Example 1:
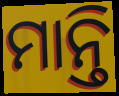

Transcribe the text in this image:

ମାନ୍ତି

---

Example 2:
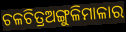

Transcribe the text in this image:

ଚଳଚିତ୍ରଅଙ୍ଗୁଳିମାଳାର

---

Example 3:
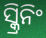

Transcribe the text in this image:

ସ୍କ୍ରିନିଂ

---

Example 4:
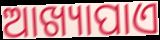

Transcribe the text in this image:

ଆଖ୍ୟାପାଏ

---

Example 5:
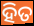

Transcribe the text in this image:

ହିତ